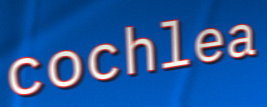
cochlea